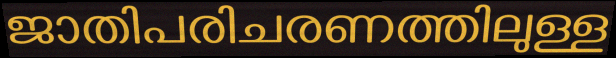
ജാതിപരിചരണത്തിലുള്ള